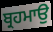
ਬ੍ਰਹਮਾਉ